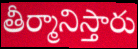
తీర్మానిస్తారు